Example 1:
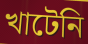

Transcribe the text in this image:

খাটেনি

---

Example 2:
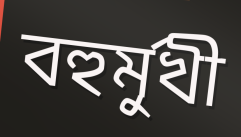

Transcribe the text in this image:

বহুর্মুখী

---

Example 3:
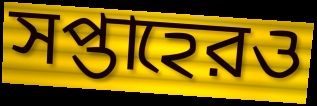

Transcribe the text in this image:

সপ্তাহেরও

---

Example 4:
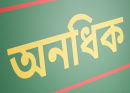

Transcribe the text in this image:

অনধিক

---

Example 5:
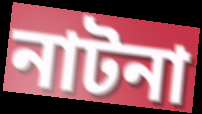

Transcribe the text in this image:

নাটনা